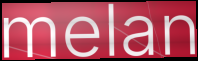
melan